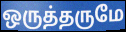
ஒருத்தருமே